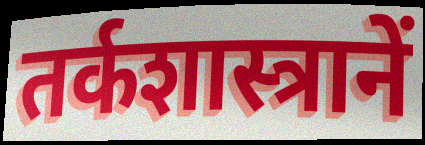
तर्कशास्त्रानें